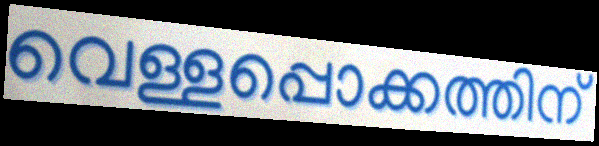
വെള്ളപ്പൊക്കത്തിന്